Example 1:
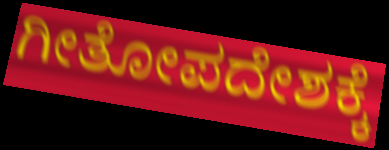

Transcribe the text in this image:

ಗೀತೋಪದೇಶಕ್ಕೆ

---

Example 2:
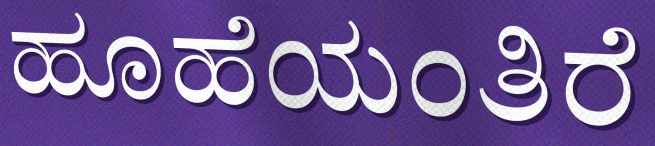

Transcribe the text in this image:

ಹೂಹೆಯಂತಿರೆ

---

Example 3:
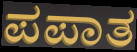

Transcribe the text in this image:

ಪಪಾತ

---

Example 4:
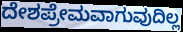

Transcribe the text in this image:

ದೇಶಪ್ರೇಮವಾಗುವುದಿಲ್ಲ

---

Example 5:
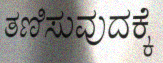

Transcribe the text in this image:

ತಣಿಸುವುದಕ್ಕೆ